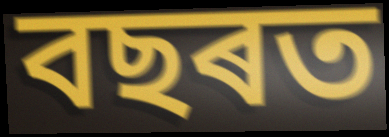
বছৰত